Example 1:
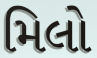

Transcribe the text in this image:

મિલો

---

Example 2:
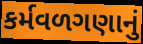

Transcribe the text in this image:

કર્મવળગણાનું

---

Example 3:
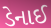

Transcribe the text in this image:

ડેનાઈ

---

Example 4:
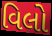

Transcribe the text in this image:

વિલો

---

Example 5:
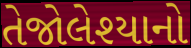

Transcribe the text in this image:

તેજોલેશ્યાનો